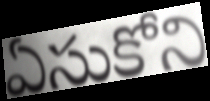
ఏసుకోని